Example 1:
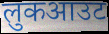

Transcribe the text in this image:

लुकआउट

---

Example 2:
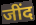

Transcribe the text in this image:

जींद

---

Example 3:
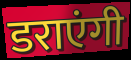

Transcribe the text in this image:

डराएंगी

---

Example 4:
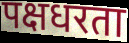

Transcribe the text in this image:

पक्षधरता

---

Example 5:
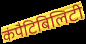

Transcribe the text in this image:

कंपैटिबिलिटी